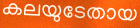
കലയുടേതായ